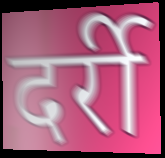
दर्री